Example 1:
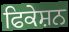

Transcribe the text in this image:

ਫਿਕੇਸ਼ਨ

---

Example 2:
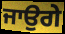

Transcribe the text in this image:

ਜਾਉਗੇ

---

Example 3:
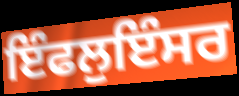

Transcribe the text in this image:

ਇੰਫਲੁਇੰਸਰ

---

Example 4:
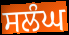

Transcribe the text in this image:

ਸਲੰਘ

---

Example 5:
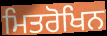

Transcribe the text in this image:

ਮਿਤਰੋਖਿਨ